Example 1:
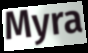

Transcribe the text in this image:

Myra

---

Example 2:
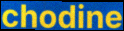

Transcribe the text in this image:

chodine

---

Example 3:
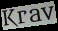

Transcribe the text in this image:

Krav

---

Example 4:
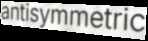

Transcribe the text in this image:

antisymmetric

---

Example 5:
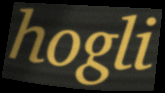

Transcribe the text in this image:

hogli